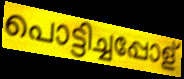
പൊട്ടിച്ചപ്പോള്